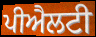
ਪੀਐਲਟੀ